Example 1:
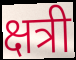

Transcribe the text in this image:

क्षत्री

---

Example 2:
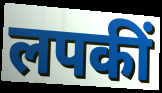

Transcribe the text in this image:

लपकीं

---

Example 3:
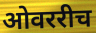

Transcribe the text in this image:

ओवररीच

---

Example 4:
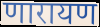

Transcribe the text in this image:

णारायण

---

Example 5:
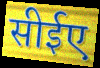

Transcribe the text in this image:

सीईए